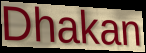
Dhakan